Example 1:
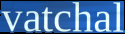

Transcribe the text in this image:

vatchal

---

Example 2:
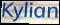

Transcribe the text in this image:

Kylian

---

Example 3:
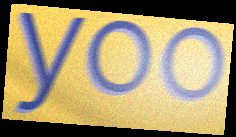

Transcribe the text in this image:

yoo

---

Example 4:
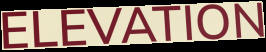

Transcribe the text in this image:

ELEVATION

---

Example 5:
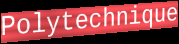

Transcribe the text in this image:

Polytechnique